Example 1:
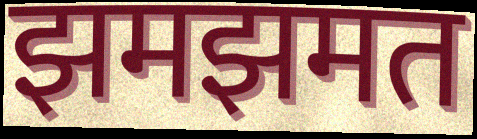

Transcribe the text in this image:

झमझमत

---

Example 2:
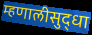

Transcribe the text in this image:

म्हणालीसुद्धा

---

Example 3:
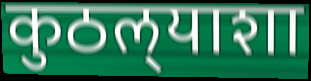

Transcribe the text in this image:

कुठल्याशा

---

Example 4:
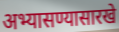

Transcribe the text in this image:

अभ्यासण्यासारखे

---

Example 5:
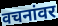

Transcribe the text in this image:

वचनांवर